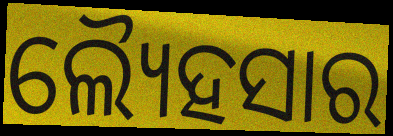
ଲ୍ୟୈହସାର